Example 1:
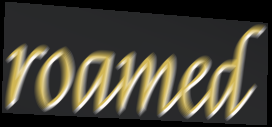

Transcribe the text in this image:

roamed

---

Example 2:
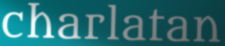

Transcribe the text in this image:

charlatan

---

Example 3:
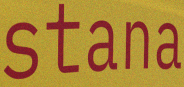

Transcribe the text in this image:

stana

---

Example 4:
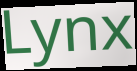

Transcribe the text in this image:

Lynx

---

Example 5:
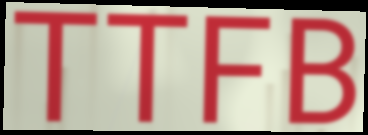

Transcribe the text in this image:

TTFB